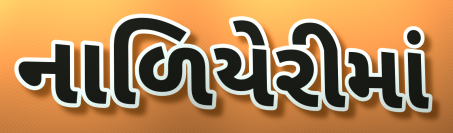
નાળિયેરીમાં